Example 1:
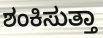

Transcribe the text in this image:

ಶಂಕಿಸುತ್ತಾ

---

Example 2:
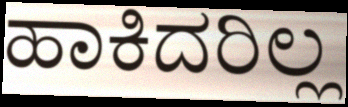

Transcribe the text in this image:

ಹಾಕಿದರಿಲ್ಲ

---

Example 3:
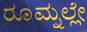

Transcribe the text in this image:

ರೂಮ್ನಲ್ಲೇ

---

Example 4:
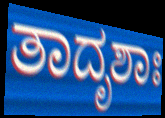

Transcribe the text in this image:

ತಾದೃಶಾಃ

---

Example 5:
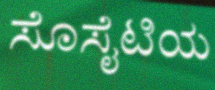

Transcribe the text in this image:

ಸೊಸೈಟಿಯ